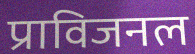
प्राविजनल